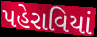
પહેરાવિયાં